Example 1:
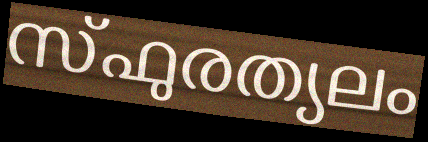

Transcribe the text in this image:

സ്ഫുരത്യലം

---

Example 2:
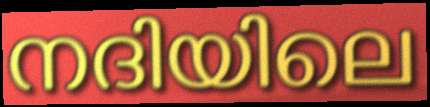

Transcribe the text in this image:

നദിയിലെ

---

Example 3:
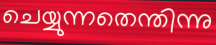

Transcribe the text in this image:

ചെയ്യുന്നതെന്തിന്നു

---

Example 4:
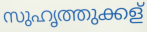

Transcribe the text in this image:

സുഹൃത്തുക്കള്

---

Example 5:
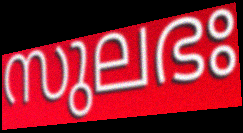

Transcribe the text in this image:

സുലഭഃ